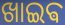
ଖାଇଵ